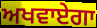
ਅਖਵਾਏਗਾ